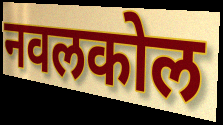
नवलकोल